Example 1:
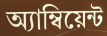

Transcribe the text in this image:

অ্যাম্বিয়েন্ট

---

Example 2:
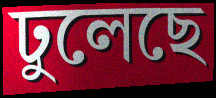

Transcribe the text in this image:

ঢুলেছে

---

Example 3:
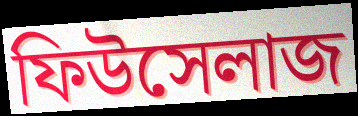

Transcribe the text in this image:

ফিউসেলাজ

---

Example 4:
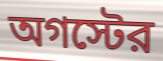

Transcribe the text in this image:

অগস্টের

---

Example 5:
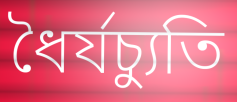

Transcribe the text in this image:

ধৈর্যচ্যুতি